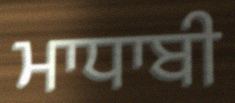
ਮਾਧਾਬੀ